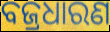
ବଜ୍ରଧାରଣ